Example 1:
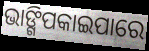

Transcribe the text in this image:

ଭାଙ୍ଗିପକାଇପାରେ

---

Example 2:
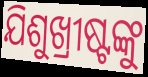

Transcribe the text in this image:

ଯିଶୁଖ୍ରୀଷ୍ଟଙ୍କୁ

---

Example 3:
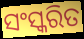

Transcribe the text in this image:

ସଂସ୍କରିତ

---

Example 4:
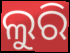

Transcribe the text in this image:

ଲୁରି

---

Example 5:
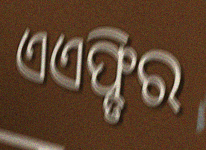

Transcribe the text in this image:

ଏଏଫ୍ଡିର